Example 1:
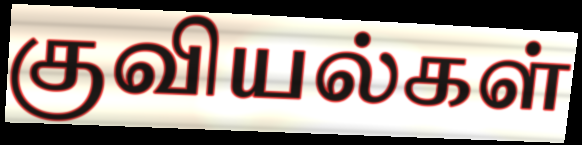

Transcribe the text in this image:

குவியல்கள்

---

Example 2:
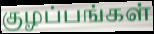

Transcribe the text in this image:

குழப்பங்கள்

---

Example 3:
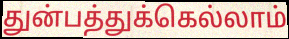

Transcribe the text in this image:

துன்பத்துக்கெல்லாம்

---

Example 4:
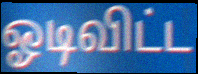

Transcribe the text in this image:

ஓடிவிட்ட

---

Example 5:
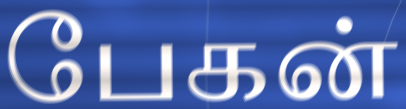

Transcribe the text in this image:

பேகன்